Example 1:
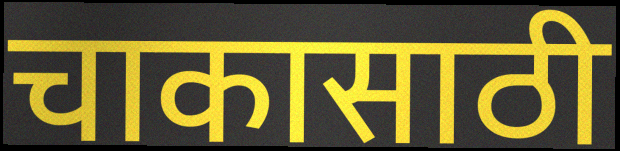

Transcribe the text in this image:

चाकासाठी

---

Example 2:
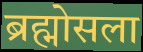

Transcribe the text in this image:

ब्रह्मोसला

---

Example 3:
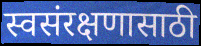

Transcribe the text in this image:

स्वसंरक्षणासाठी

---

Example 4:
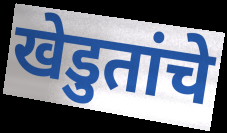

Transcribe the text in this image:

खेडुतांचे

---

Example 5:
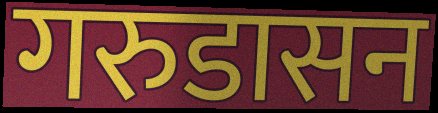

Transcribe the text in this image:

गरुडासन